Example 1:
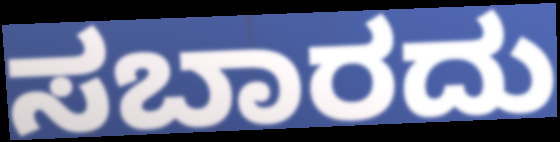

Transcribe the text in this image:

ಸಬಾರದು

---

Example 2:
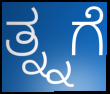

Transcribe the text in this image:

ತ್ನ್ನಗೆ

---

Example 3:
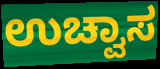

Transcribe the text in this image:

ಉಚ್ವಾಸ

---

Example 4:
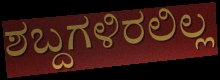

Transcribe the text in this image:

ಶಬ್ದಗಳಿರಲಿಲ್ಲ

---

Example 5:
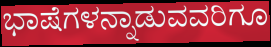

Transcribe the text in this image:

ಭಾಷೆಗಳನ್ನಾಡುವವರಿಗೂ